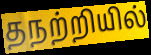
தநற்றியில்